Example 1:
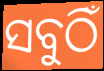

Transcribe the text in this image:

ସବୁଠିଁ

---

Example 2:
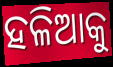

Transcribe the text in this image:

ହଳିଆକୁ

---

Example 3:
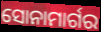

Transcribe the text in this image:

ସୋନାମାର୍ଗର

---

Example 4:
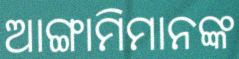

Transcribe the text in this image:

ଆଙ୍ଗାମିମାନଙ୍କ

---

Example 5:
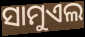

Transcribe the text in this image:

ସାମୁଏଲ